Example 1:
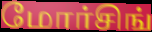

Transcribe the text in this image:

மோர்சிங்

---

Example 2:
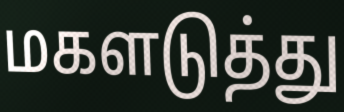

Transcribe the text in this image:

மகளடுத்து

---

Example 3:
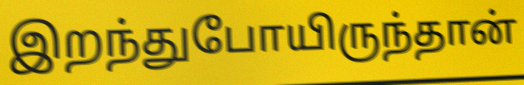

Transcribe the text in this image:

இறந்துபோயிருந்தான்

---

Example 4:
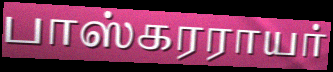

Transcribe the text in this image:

பாஸ்கரராயர்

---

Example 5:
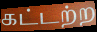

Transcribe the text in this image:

கட்டற்ற